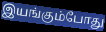
இயங்கும்போது